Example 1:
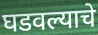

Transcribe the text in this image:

घडवल्याचे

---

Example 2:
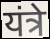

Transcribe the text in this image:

यंत्रे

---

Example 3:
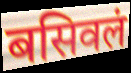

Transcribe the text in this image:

बसिवलं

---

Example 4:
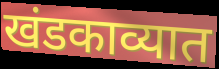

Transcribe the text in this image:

खंडकाव्यात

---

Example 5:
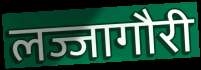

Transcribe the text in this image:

लज्जागौरी